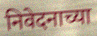
निवेदनाच्या